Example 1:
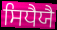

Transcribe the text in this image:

ਸਿਧੈਯੈ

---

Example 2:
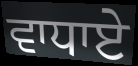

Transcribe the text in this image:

ਵਾਧਾਏ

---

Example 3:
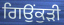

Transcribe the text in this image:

ਗਿਉਂਕੁੜੀ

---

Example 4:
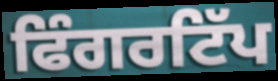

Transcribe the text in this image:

ਫਿੰਗਰਟਿੱਪ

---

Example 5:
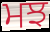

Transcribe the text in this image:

ਮਝ